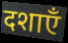
दशाएँ